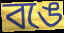
বঙে